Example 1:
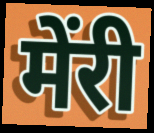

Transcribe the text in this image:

मेंरी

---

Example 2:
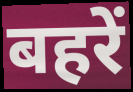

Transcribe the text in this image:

बहरें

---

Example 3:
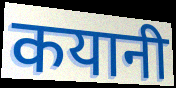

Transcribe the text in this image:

कयानी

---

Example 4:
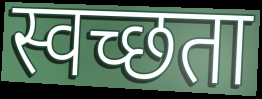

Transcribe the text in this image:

स्वच्छता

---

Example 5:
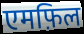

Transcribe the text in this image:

एमफ़िल